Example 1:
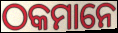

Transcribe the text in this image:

ଠକମାନେ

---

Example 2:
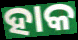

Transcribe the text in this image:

ହାକ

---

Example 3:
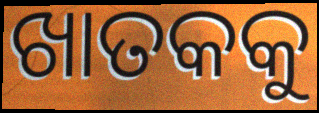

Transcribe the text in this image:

ଖାତକକୁ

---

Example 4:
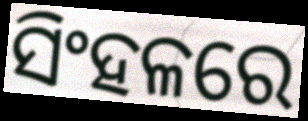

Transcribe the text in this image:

ସିଂହଳରେ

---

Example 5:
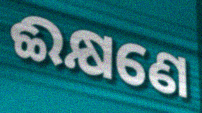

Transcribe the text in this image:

ଈକ୍ଷଣେ